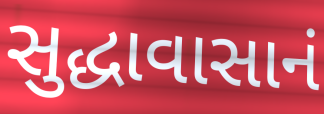
સુદ્ધાવાસાનં